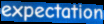
expectation